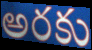
అరకు